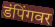
डंपिंगवर